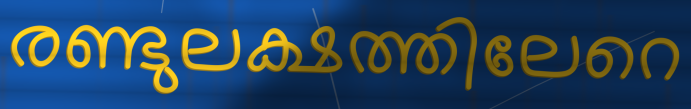
രണ്ടുലക്ഷത്തിലേറെ